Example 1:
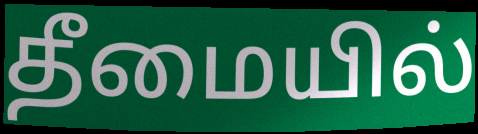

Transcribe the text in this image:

தீமையில்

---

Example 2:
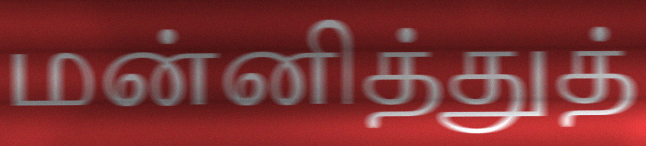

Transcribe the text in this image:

மன்னித்துத்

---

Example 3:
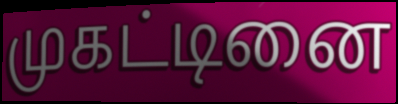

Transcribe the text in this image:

முகட்டினை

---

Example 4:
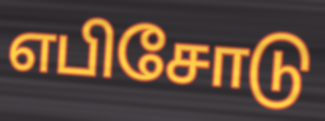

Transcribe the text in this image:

எபிசோடு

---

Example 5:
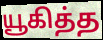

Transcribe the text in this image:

யூகித்த